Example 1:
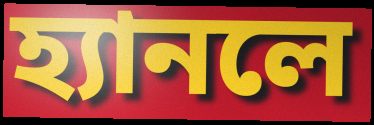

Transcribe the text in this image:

হ্যানলে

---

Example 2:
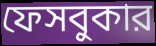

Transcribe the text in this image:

ফেসবুকার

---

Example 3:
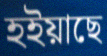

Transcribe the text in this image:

হইয়াছে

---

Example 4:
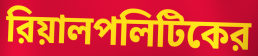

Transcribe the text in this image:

রিয়ালপলিটিকের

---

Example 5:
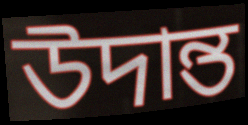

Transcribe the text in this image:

উদান্ত